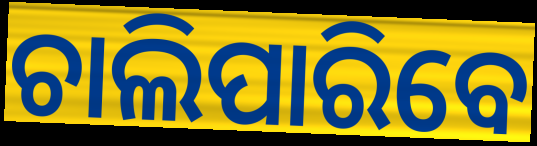
ଚାଲିପାରିବେ